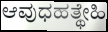
ಆವುಧಹತ್ಥೇಹಿ